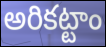
అరికట్టాం